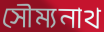
সৌম্যনাথ